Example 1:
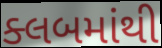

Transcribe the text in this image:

ક્લબમાંથી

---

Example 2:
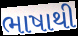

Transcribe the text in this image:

ભાષાથી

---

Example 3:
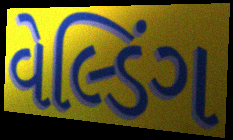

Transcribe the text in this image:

વેલ્ડિંગ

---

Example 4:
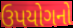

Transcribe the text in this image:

ઉપયોગનો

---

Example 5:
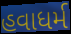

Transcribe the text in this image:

હવાધર્મ